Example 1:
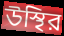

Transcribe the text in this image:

উস্থির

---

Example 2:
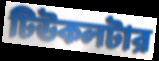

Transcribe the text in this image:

টিউকলটার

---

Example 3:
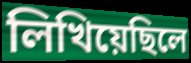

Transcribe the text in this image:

লিখিয়েছিলে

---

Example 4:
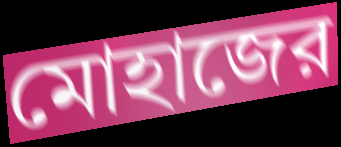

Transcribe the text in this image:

মোহাজের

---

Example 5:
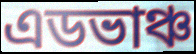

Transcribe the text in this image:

এডভাঞ্চ